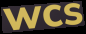
wcs